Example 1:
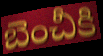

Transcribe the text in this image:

బెంచీకి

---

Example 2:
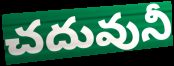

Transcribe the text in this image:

చదువునీ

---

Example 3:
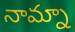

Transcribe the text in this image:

నామ్నా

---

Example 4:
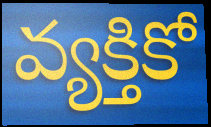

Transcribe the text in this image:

వ్యక్తికో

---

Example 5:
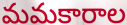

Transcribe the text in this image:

మమకారాల